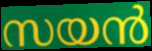
സയൻ